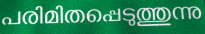
പരിമിതപ്പെടുത്തുന്നു